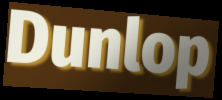
Dunlop